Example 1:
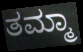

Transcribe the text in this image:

ತಮ್ಮಾ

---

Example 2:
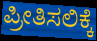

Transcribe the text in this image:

ಪ್ರೀತಿಸಲಿಕ್ಕೆ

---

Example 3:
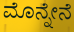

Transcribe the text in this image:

ಮೊನ್ನೇನೆ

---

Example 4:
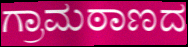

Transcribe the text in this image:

ಗ್ರಾಮಠಾಣದ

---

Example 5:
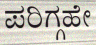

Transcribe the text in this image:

ಪರಿಗ್ಗಹೇ